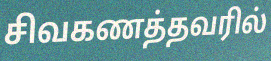
சிவகணத்தவரில்